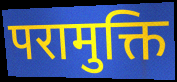
परामुक्ति